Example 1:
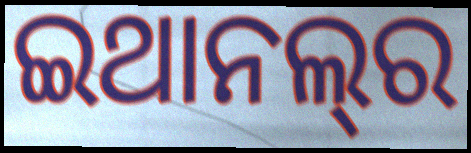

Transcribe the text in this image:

ଇଥାନଲ୍‌ର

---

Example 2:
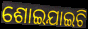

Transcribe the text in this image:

ଶୋଇଯାଇଚି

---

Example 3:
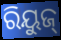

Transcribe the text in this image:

ରିୟୁଜ୍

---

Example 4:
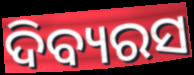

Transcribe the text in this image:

ଦିବ୍ୟରସ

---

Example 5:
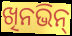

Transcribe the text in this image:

ଖିନଭିନ୍